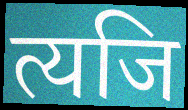
त्यजि